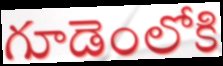
గూడెంలోకి